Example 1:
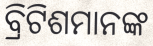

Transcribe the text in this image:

ବ୍ରିଟିଶମାନଙ୍କ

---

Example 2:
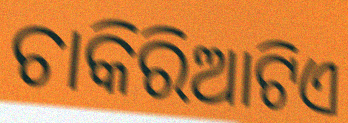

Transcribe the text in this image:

ଚାକିରିଆଟିଏ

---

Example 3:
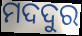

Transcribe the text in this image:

ମଦଦୁର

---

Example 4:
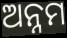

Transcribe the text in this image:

ଅନ୍ନମ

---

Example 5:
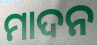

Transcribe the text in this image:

ମାଦନ